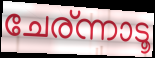
ചേര്ന്നാടൂ